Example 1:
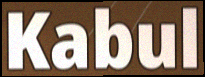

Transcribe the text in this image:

Kabul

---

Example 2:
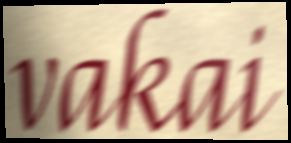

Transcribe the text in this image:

vakai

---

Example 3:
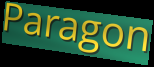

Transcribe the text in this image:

Paragon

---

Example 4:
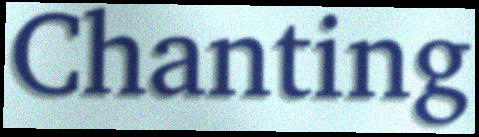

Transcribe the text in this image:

Chanting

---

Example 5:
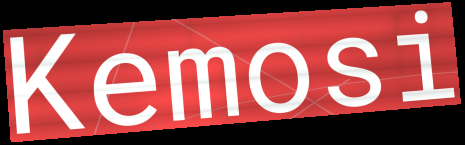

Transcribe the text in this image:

Kemosi